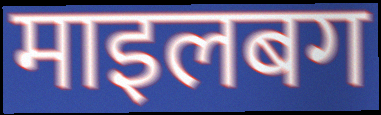
माइलबग